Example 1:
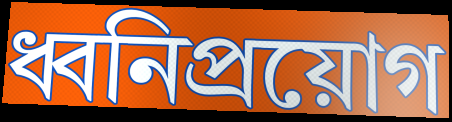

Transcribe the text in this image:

ধ্বনিপ্রয়োগ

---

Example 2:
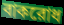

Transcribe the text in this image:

বাকরোধ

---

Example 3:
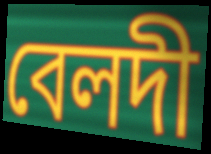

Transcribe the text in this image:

বেলদী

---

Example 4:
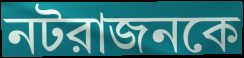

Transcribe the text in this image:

নটরাজনকে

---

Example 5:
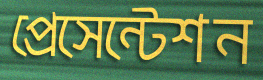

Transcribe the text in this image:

প্রেসেন্টেশন